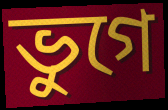
ভুগে